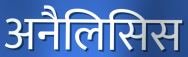
अनैलिसिस